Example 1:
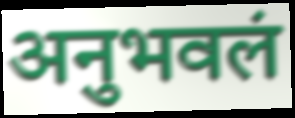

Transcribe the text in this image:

अनुभवलं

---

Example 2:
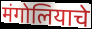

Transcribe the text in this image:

मंगोलियाचे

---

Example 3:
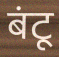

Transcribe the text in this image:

बंटू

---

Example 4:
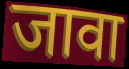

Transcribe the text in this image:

जावा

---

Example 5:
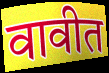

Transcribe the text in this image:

वावीत